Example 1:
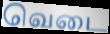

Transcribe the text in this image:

வெடை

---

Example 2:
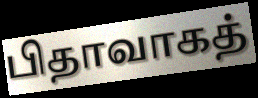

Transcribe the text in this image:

பிதாவாகத்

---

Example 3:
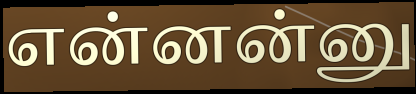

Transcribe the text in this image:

என்னன்னு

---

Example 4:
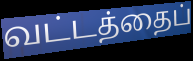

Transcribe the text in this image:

வட்டத்தைப்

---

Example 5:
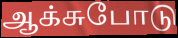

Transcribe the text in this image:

ஆக்சுபோடு